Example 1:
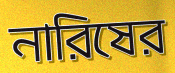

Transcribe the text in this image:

নারিষের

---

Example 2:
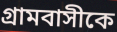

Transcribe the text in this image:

গ্রামবাসীকে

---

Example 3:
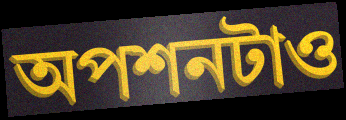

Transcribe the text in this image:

অপশনটাও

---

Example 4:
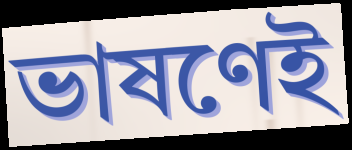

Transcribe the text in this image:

ভাষণেই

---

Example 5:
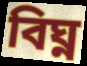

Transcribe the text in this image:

বিঘ্ন